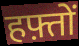
हफ़्तों